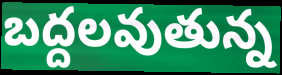
బద్దలవుతున్న